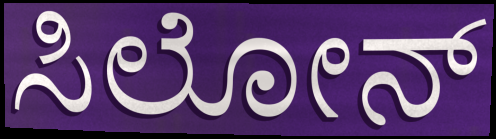
ಸಿಲೋನ್